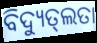
ବିଦ୍ୟୁତ୍‌ଲତା